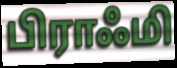
பிராஃமி